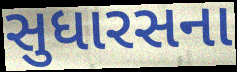
સુધારસના